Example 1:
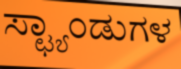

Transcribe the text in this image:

ಸ್ಟ್ಯಾಂಡುಗಳ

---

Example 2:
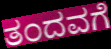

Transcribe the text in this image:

ತಂದವಗೆ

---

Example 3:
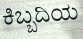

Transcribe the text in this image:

ಕಿಬ್ಬದಿಯ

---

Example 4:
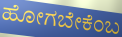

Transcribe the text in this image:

ಹೋಗಬೇಕೆಂಬ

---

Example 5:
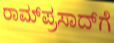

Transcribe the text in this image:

ರಾಮ್‌ಪ್ರಸಾದ್‌ಗೆ